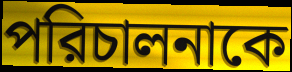
পরিচালনাকে